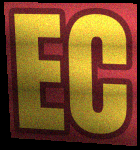
EC